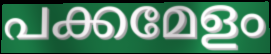
പക്കമേളം